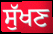
ਸੁੱਖਣ